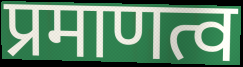
प्रमाणत्व